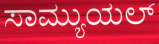
ಸಾಮ್ಯುಯಲ್